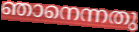
ഞാനെന്നതു